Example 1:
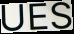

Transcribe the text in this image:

UES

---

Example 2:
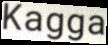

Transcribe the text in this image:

Kagga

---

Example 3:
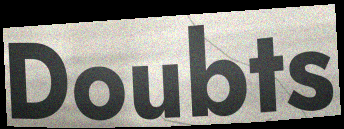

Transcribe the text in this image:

Doubts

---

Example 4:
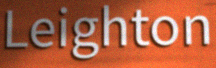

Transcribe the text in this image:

Leighton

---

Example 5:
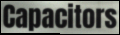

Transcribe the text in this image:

Capacitors